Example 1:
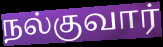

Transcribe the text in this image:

நல்குவார்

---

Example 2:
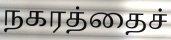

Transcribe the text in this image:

நகரத்தைச்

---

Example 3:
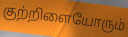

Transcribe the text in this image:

குற்றிளையோரும்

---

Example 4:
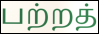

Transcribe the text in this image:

பற்றத்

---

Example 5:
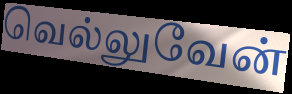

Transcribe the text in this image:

வெல்லுவேன்